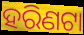
ହରିଣଟା